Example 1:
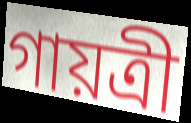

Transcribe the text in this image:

গায়ত্ৰী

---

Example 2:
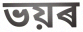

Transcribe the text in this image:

ভয়ৰ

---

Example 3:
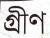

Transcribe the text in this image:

গ্ৰীণ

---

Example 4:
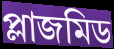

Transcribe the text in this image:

প্লাজমিড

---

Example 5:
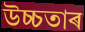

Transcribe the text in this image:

উচ্চতাৰ